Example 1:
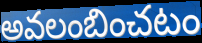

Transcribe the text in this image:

అవలంబించటం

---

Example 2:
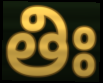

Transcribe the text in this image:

తిః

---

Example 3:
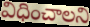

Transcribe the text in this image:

విధించాలని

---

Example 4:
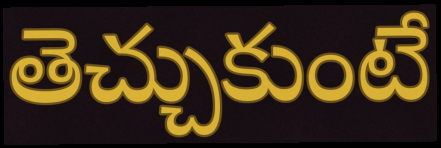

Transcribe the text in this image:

తెచ్చుకుంటే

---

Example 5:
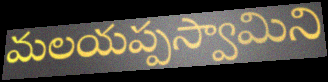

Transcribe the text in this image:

మలయప్పస్వామిని